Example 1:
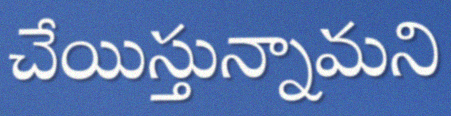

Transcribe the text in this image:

చేయిస్తున్నామని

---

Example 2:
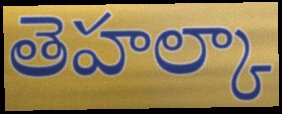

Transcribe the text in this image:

తెహల్కా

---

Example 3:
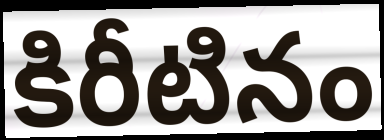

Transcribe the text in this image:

కిరీటినం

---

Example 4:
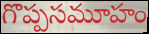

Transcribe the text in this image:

గొప్పసమూహం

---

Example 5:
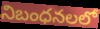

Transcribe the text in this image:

నిబంధనలలో